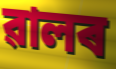
ৱালৰ